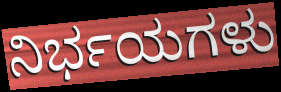
ನಿರ್ಭಯಗಳು